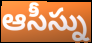
ఆసీస్ను